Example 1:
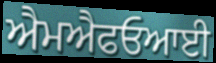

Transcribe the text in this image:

ਐਮਐਫਓਆਈ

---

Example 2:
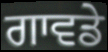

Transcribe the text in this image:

ਗਾਵਡੇ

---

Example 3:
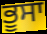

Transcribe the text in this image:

ਭੂਸਾ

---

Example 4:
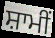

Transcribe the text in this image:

ਸ਼ਾਮੀਂ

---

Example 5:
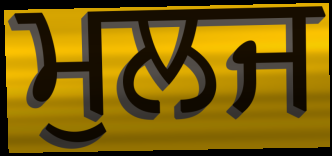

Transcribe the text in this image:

ਮੁਲਜ